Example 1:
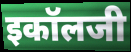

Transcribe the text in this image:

इकॉलजी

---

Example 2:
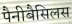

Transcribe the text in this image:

पैनीबैसिलस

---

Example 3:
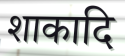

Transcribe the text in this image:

शाकादि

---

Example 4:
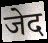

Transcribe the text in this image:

जेद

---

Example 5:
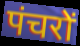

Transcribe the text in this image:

पंचरों